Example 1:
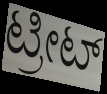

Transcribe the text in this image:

ಟ್ರೀಟ್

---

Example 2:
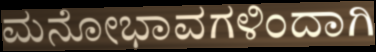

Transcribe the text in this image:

ಮನೋಭಾವಗಳಿಂದಾಗಿ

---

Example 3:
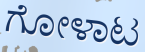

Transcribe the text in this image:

ಗೋಳಾಟ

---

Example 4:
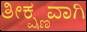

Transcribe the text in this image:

ತೀಕ್ಷ್ಣವಾಗಿ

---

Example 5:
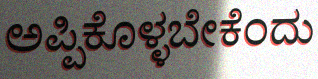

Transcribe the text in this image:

ಅಪ್ಪಿಕೊಳ್ಳಬೇಕೆಂದು